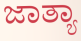
ಜಾತ್ಯಾ